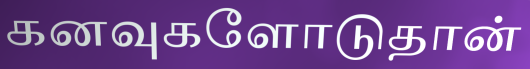
கனவுகளோடுதான்